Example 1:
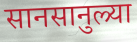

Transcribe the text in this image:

सानसानुल्या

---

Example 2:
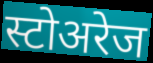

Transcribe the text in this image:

स्टोअरेज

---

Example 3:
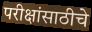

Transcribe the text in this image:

परीक्षांसाठीचे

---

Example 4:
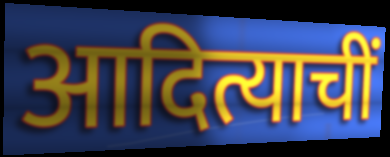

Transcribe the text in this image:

आदित्याचीं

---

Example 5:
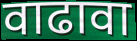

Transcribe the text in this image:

वाढावा